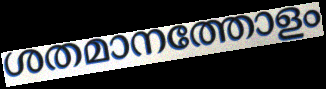
ശതമാനത്തോളം